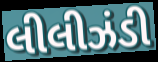
લીલીઝંડી